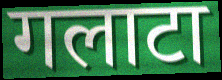
गलाटा